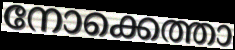
നോക്കെത്താ